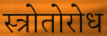
स्त्रोतोरोध